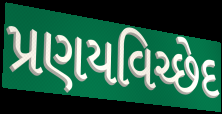
પ્રણયવિચ્છેદ